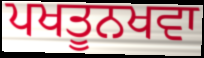
ਪਖਤੂਨਖਵਾ